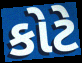
કોટે